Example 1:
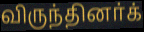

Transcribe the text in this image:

விருந்தினர்க்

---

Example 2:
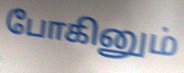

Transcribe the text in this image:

போகினும்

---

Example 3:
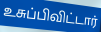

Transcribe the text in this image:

உசுப்பிவிட்டார்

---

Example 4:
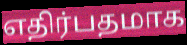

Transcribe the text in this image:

எதிர்பதமாக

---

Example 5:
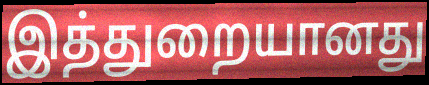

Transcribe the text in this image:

இத்துறையானது